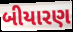
બીયારણ